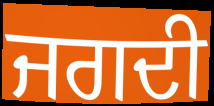
ਜਗਦੀ